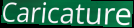
Caricature